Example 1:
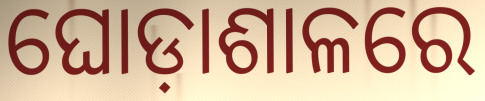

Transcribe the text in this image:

ଘୋଡ଼ାଶାଳରେ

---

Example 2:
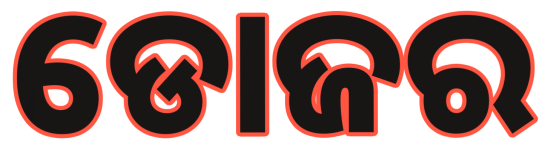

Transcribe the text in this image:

ଡୋଜର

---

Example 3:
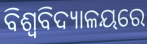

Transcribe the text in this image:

ବିଶ୍ବବିଦ୍ୟାଳୟରେ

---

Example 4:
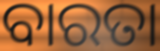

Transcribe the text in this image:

ବାରତା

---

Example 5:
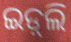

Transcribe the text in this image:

ଇଡ଼୍‌ଲି